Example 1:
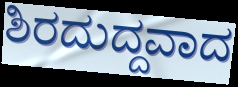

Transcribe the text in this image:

ಶಿರದುದ್ದವಾದ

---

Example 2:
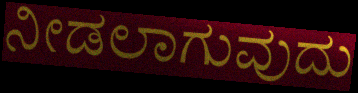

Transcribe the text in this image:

ನೀಡಲಾಗುವುದು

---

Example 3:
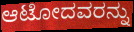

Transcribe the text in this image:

ಆಟೋದವರನ್ನು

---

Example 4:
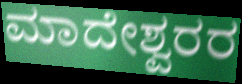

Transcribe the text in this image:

ಮಾದೇಶ್ವರರ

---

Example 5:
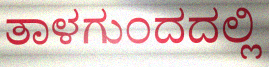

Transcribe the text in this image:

ತಾಳಗುಂದದಲ್ಲಿ